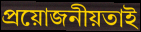
প্ৰয়োজনীয়তাই